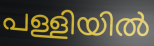
പള്ളിയിൽ